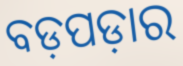
ବଡ଼ପଡ଼ାର